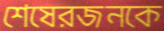
শেষেরজনকে